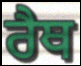
ਰੈਥ